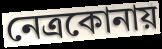
নেত্রকোনায়